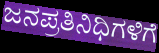
ಜನಪ್ರತಿನಿಧಿಗಳಿಗೆ